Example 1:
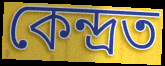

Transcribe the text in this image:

কেন্দ্ৰত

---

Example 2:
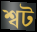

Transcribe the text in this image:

শ্বট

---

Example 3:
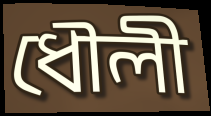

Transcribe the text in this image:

ধৌলী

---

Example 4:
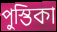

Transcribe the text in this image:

পুস্তিকা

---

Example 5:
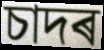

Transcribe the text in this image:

চাদৰ